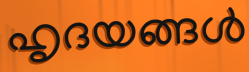
ഹൃദയങ്ങൾ